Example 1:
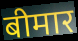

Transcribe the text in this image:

बीमार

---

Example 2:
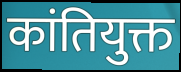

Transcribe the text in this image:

कांतियुक्त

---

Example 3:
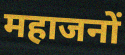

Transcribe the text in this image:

महाजनों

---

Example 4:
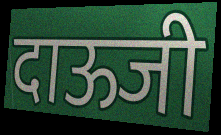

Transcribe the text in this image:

दाऊजी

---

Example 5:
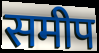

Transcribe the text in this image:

समीप